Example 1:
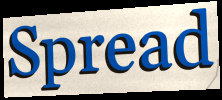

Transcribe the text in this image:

Spread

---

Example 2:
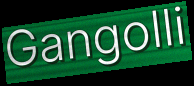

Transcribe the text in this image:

Gangolli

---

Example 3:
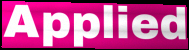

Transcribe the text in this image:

Applied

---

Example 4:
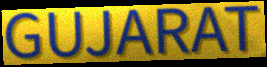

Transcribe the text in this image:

GUJARAT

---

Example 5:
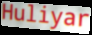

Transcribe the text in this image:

Huliyar